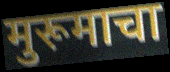
मुरूमाचा